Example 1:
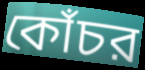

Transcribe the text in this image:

কোঁচর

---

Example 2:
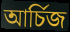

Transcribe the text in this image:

আর্চিজ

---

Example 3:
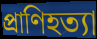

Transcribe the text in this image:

প্রাণিহত্যা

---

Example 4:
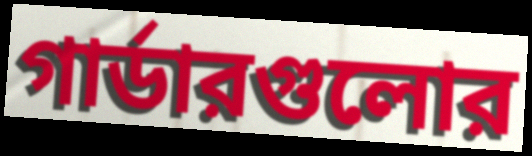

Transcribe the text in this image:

গার্ডারগুলোর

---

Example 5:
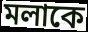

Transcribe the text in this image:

মলাকে